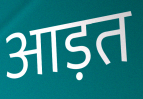
आड़त